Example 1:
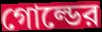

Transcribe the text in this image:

গোল্ডের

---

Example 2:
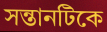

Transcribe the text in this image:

সন্তানটিকে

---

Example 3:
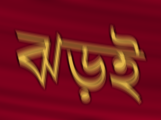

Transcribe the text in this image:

ঝড়ই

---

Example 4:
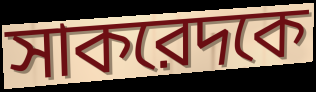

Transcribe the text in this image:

সাকরেদকে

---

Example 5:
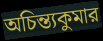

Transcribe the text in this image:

অচিন্ত্যকুমার